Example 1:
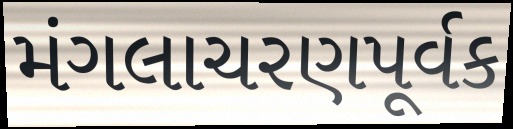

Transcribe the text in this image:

મંગલાચરણપૂર્વક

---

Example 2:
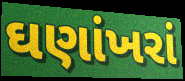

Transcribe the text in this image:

ઘણાંખરાં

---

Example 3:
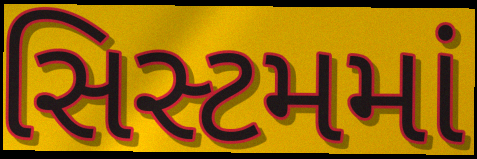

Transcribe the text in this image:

સિસ્ટમમાં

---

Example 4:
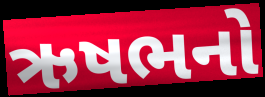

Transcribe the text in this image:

ઋષભનો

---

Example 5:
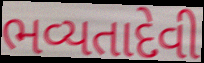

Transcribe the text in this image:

ભવ્યતાદેવી